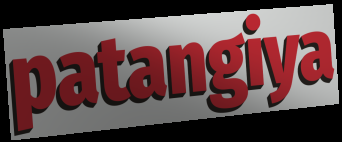
patangiya